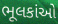
ભૂલકાંઓ